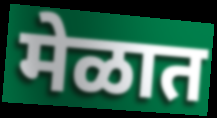
मेळात